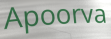
Apoorva